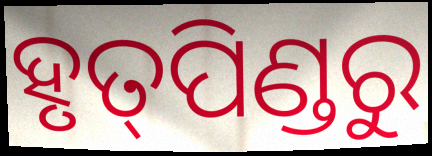
ହୃତ୍‌ପିଣ୍ଡରୁ